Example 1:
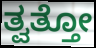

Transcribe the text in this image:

ತ್ವತ್ತೋ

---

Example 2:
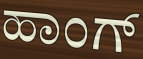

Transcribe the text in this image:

ಹಾಂಗ್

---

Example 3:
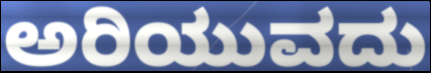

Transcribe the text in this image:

ಅರಿಯುವದು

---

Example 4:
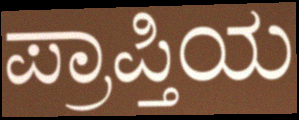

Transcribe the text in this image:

ಪ್ರಾಪ್ತಿಯ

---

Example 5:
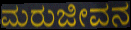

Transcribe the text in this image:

ಮರುಜೀವನ